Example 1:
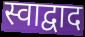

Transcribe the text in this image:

स्वाद्वाद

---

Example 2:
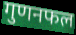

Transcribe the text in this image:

गुणनफल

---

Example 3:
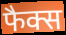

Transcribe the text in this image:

फैक्स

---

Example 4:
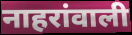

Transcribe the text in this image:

नाहरांवाली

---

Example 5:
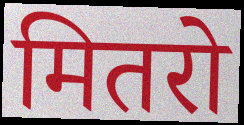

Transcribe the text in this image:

मितरो